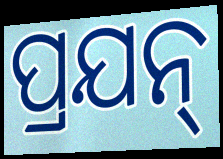
ପ୍ରଯନ୍